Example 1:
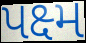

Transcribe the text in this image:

પક્ષ્મ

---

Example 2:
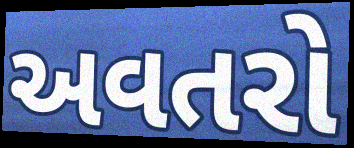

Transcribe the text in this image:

અવતરો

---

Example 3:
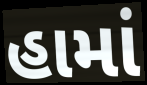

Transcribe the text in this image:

હામાં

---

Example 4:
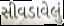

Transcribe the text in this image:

સીવડાવેલું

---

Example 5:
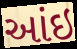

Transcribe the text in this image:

આંઇ